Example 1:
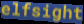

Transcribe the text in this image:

elfsight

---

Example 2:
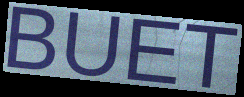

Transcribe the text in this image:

BUET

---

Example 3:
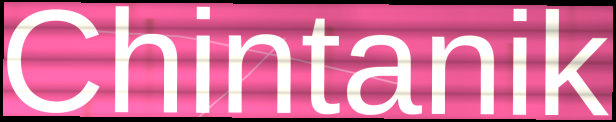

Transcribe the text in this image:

Chintanik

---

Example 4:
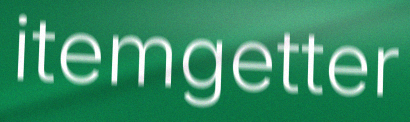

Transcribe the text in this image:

itemgetter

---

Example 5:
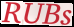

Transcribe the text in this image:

RUBs